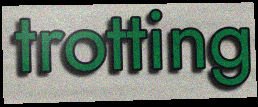
trotting